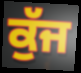
ਕੁੱਜ